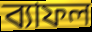
ব্যাফল